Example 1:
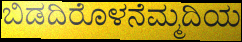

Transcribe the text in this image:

ಬಿಡದಿರೊಳನೆಮ್ಮದಿಯ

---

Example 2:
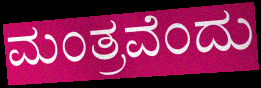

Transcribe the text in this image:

ಮಂತ್ರವೆಂದು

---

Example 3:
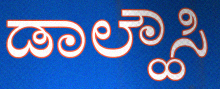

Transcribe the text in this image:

ಡಾಲ್ಹೌಸಿ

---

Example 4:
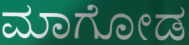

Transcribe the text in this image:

ಮಾಗೋಡ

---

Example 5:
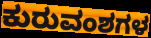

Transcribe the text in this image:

ಕುರುವಂಶಗಳ